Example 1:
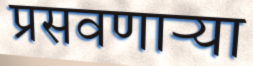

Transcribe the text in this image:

प्रसवणाऱ्या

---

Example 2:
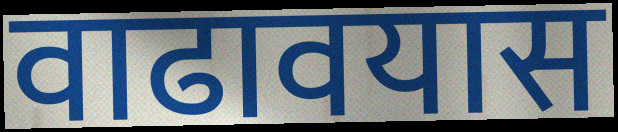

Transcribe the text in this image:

वाढावयास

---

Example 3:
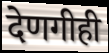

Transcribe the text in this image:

देणगीही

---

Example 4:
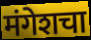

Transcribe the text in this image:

मंगेशचा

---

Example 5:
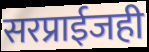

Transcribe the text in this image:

सरप्राईजही